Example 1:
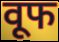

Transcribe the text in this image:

वूफ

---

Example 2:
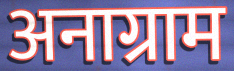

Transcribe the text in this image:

अनाग्राम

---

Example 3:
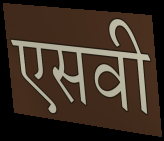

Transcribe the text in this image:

एसवी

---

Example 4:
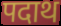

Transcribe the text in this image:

पदाथ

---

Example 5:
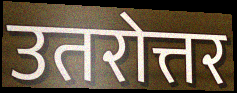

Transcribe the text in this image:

उतरोत्तर